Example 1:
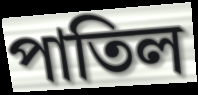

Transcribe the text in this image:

পাতিল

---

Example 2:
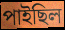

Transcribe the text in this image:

পাইছিল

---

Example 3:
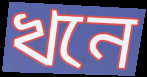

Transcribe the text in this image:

খনে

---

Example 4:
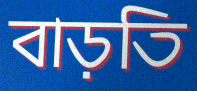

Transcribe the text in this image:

বাড়তি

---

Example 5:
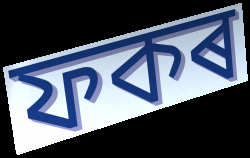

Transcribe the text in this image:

ফকৰ